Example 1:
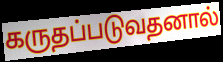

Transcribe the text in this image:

கருதப்படுவதனால்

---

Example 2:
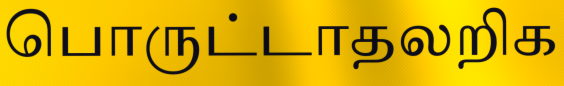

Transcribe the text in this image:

பொருட்டாதலறிக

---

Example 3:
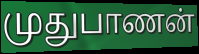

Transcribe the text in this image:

முதுபாணன்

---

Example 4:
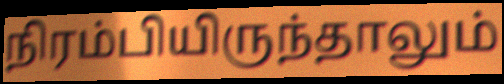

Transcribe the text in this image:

நிரம்பியிருந்தாலும்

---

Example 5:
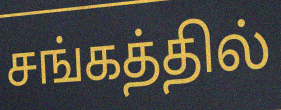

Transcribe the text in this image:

சங்கத்தில்